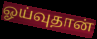
ஓய்வுதான்